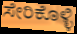
ಸೇರಿಕೊಳ್ಳಿ